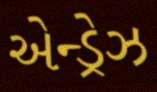
એન્ડ્રેઝ